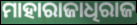
ମାହାରାଜାଧିରାଜ